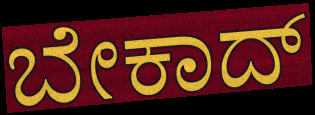
ಬೇಕಾದ್